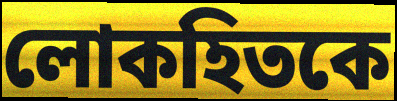
লোকহিতকে